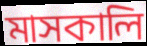
মাসকালি